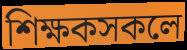
শিক্ষকসকলে